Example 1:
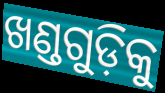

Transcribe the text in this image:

ଖଣ୍ଡଗୁଡ଼ିକୁ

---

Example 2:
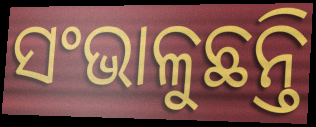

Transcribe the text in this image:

ସଂଭାଳୁଛନ୍ତି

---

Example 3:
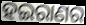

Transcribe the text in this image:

ହଇରାଣର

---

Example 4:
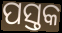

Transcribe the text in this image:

ପସ୍ତକ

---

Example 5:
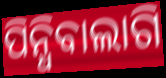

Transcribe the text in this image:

ପିନ୍ଧିବାଲାଗି